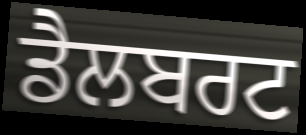
ਡੈਲਬਰਟ